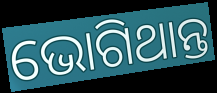
ଭୋଗିଥାନ୍ତ